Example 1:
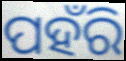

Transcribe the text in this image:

ପହଁରି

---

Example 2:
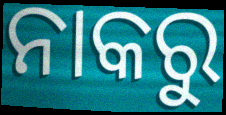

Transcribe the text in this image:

ନାକରୁ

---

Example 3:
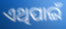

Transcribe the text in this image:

ଏଥିପାଇଁ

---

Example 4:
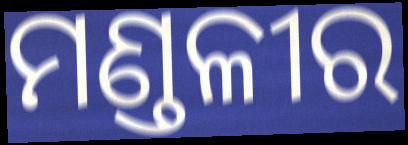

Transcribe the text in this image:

ମଣ୍ଡଳୀର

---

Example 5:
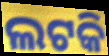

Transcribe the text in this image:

ଲଟକି